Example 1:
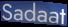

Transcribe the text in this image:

Sadaat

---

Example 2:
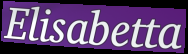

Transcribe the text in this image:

Elisabetta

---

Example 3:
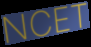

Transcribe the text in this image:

NCET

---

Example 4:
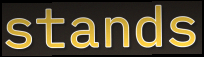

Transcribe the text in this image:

stands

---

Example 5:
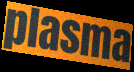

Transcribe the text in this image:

plasma